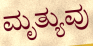
ಮೃತ್ಯುವು